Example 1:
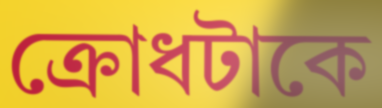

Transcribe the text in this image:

ক্রোধটাকে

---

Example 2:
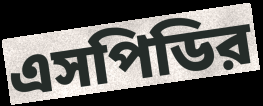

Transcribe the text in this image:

এসপিডির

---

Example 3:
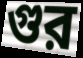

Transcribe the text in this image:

গুর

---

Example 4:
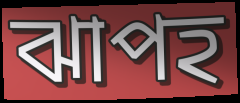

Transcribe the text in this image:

ঝাপহ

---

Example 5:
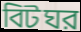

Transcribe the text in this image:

বিটঘর